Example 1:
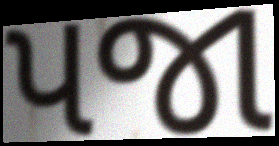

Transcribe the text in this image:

પજા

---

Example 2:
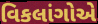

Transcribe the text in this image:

વિકલાંગોએ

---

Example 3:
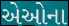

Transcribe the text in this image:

એઓના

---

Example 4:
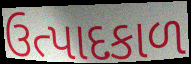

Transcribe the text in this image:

ઉત્પાદકાળ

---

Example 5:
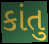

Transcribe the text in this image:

કાંતુ